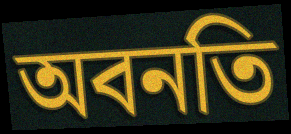
অবনতি